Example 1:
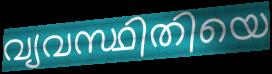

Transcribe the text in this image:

വ്യവസ്ഥിതിയെ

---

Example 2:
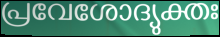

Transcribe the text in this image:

പ്രവേശോദ്യുക്തഃ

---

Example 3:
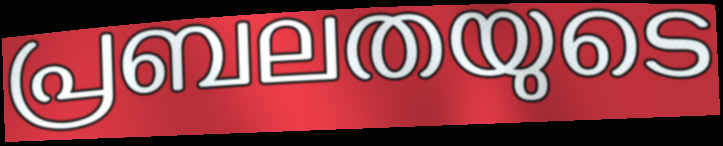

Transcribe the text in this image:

പ്രബലതയുടെ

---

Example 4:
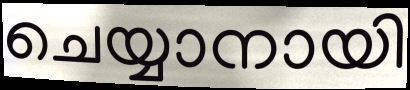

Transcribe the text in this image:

ചെയ്യാനായി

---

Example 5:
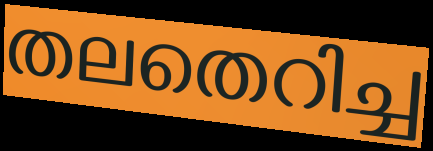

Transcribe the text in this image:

തലതെറിച്ച